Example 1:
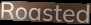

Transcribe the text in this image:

Roasted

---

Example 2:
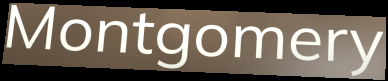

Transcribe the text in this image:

Montgomery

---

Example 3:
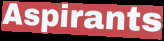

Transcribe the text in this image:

Aspirants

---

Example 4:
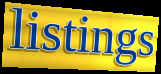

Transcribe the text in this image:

listings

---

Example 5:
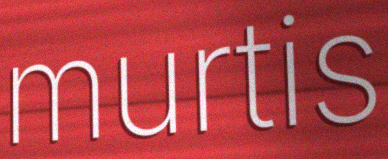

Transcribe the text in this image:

murtis